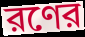
রণের